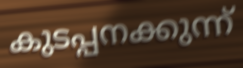
കുടപ്പനക്കുന്ന്